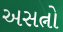
અસત્નો